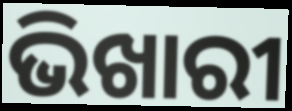
ଭିଖାରୀ